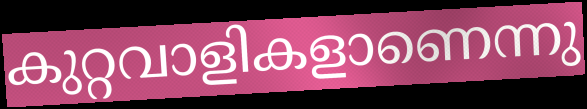
കുറ്റവാളികളാണെന്നു